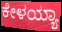
ಕೇಳಯ್ಯಾ